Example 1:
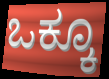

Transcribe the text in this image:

ಒಕ್ಕೂ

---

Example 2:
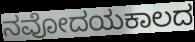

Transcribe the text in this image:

ನವೋದಯಕಾಲದ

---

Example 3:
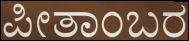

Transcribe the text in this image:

ಪೀತಾಂಬರ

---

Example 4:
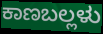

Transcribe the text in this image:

ಕಾಣಬಲ್ಲಳು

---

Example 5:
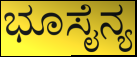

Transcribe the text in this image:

ಭೂಸೈನ್ಯ